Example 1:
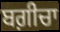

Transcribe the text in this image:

ਬਗ਼ੀਚਾ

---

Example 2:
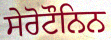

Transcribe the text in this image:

ਸੇਰੋਟੌਨਿਨ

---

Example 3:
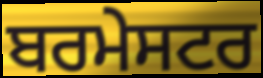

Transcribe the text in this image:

ਬਰਮੇਸਟਰ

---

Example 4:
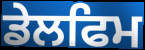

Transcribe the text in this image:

ਡੇਲਫਿਮ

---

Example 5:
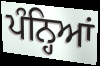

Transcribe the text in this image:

ਪੰਨ੍ਹਿਆਂ